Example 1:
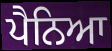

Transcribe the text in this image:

ਪੈਨਿਆ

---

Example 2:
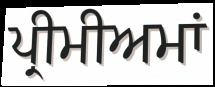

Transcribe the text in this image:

ਪ੍ਰੀਮੀਅਮਾਂ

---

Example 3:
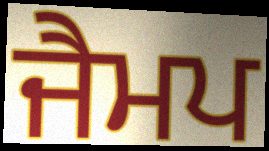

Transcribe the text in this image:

ਜੈਮਪ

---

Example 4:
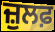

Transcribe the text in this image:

ਜ਼ੁਲਫ਼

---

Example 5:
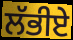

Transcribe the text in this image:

ਲੱਭੀਏ